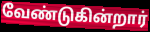
வேண்டுகின்றார்